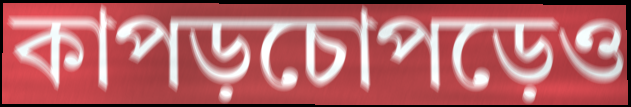
কাপড়চোপড়েও